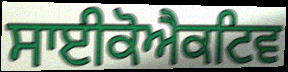
ਸਾਈਕੋਐਕਟਿਵ